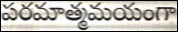
పరమాత్మమయంగా